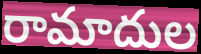
రామాదుల